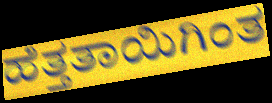
ಹೆತ್ತತಾಯಿಗಿಂತ